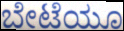
ಬೇಟೆಯೂ